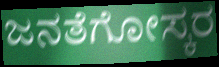
ಜನತೆಗೋಸ್ಕರ